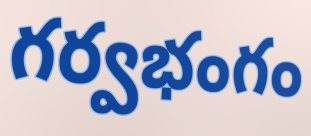
గర్వభంగం